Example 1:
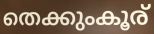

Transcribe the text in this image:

തെക്കുംകൂര്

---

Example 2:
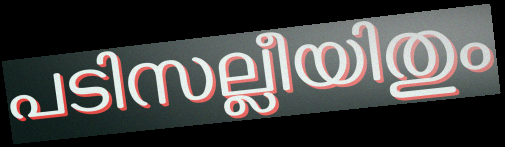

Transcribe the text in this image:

പടിസല്ലീയിതും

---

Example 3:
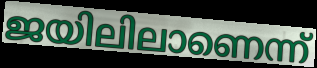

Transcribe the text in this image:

ജയിലിലാണെന്ന്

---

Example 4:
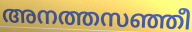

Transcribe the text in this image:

അനത്തസഞ്ഞീ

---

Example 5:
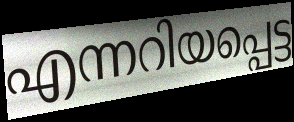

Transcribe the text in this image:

എന്നറിയപ്പെട്ട